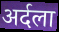
अर्दला